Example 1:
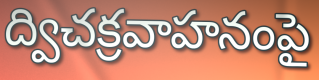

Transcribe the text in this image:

ద్విచక్రవాహనంపై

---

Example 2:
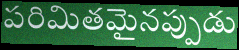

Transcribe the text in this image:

పరిమితమైనప్పుడు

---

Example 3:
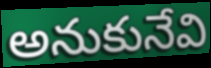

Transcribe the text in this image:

అనుకునేవి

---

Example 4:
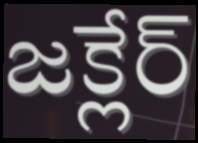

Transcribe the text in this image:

జక్లేర్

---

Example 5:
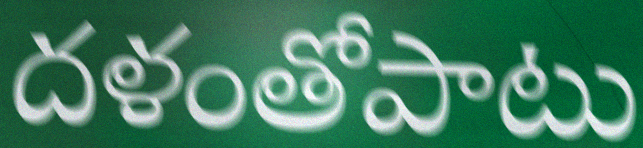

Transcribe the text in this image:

దళంతోపాటు